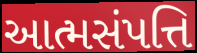
આત્મસંપત્તિ